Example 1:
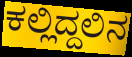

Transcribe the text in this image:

ಕಲ್ಲಿದ್ದಲಿನ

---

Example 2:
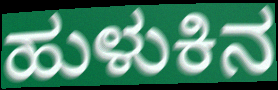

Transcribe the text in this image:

ಹುಳುಕಿನ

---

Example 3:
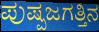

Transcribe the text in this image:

ಪುಷ್ಪಜಗತ್ತಿನ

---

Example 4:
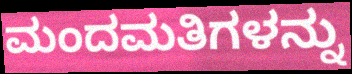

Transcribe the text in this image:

ಮಂದಮತಿಗಳನ್ನು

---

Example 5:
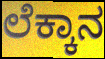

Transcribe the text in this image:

ಲೆಕ್ಕಾನ